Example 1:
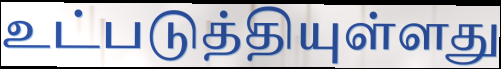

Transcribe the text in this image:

உட்படுத்தியுள்ளது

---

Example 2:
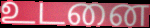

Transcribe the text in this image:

உடனை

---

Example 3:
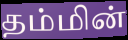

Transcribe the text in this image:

தம்மின்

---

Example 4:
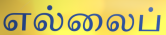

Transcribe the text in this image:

எல்லைப்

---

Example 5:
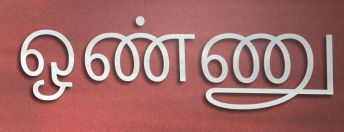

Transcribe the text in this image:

ஒண்ணு